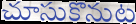
చూసుకొనుట